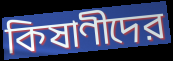
কিষাণীদের